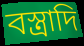
বস্ত্রাদি